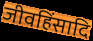
जीवहिंसादि